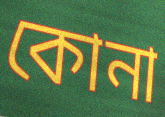
কোনা